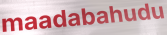
maadabahudu